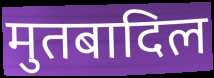
मुतबादिल